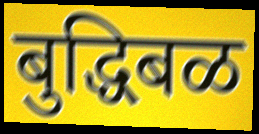
बुद्धिबळ